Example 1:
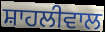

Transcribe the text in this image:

ਸ਼ਾਹਲੀਵਾਲ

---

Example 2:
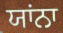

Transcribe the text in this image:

ਯਾਂਨਾ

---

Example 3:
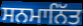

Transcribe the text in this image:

ਸਨਮਾਨਿੱਤ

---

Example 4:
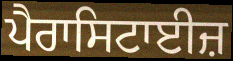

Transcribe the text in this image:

ਪੈਰਾਸਿਟਾਈਜ਼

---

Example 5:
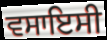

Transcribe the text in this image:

ਵਸਾਇਸੀ